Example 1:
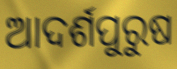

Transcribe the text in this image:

ଆଦର୍ଶପୁରୁଷ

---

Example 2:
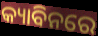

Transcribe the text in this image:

କ୍ୟାବିନରେ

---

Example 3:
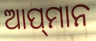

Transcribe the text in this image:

ଆପ୍‌ମାନ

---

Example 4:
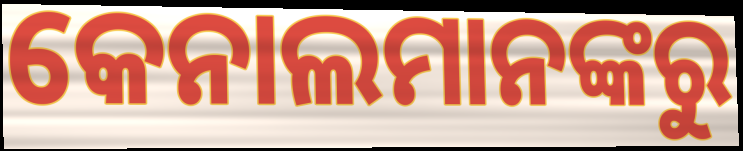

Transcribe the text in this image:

କେନାଲମାନଙ୍କରୁ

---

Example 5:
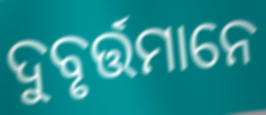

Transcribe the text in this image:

ଦୁବୃର୍ତ୍ତମାନେ